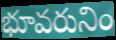
భూవరునిం